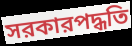
সরকারপদ্ধতি